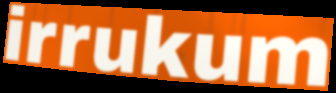
irrukum